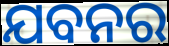
ଯବନର